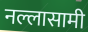
नल्लासामी